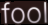
fool